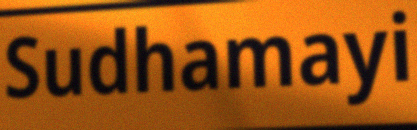
Sudhamayi